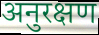
अनुरक्षण